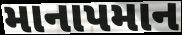
માનાપમાન